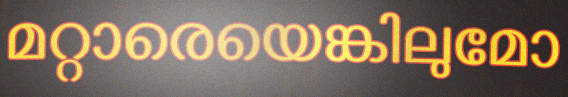
മറ്റാരെയെങ്കിലുമോ